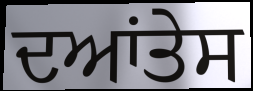
ਦਆਂਤੇਸ